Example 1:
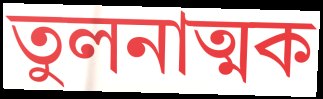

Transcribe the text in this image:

তুলনাত্মক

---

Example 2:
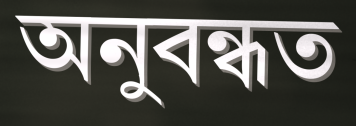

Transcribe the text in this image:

অনুবন্ধত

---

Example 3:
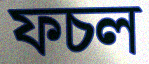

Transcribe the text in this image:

ফচল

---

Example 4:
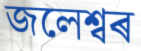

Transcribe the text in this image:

জলেশ্বৰ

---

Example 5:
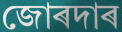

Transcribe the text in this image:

জোৰদাৰ